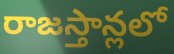
రాజస్తాన్లలో